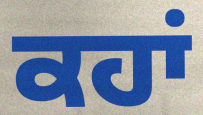
ਕਹਾਂ